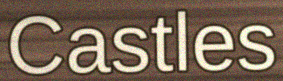
Castles